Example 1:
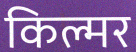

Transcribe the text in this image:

किल्मर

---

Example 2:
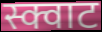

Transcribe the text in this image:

स्क्वाट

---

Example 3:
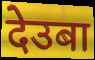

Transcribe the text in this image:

देउबा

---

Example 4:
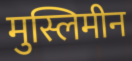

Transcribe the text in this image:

मुस्लिमीन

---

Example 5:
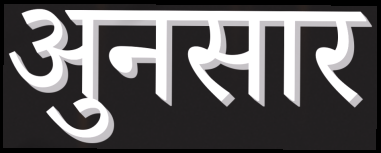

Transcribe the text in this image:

अुनसार